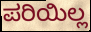
ಪರಿಯಿಲ್ಲ